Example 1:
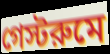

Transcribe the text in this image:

গেস্টরুমে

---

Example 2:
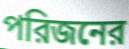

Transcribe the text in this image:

পরিজনের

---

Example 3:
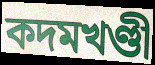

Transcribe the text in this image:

কদমখণ্ডী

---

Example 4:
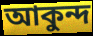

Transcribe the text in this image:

আকুন্দ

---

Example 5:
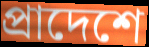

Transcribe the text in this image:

প্রাদেশে